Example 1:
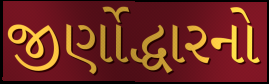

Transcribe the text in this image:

જીર્ણોદ્ધારનો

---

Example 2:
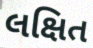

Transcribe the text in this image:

લક્ષિત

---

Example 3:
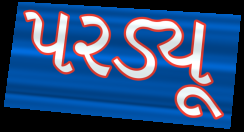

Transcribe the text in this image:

પરડ્યૂ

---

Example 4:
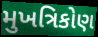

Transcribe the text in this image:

મુખત્રિકોણ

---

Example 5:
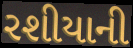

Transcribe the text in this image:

રશીયાની